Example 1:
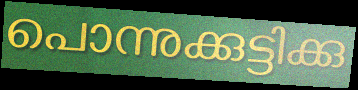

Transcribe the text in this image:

പൊന്നുക്കുട്ടിക്കു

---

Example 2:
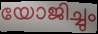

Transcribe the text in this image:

യോജിച്ചും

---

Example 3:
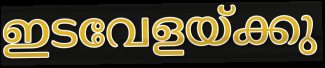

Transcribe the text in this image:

ഇടവേളയ്ക്കു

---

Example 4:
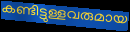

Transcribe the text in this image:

കണ്ടിട്ടുള്ളവരുമായ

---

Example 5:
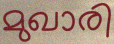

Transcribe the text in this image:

മുഖാരി